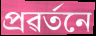
প্ৰৱৰ্তনে